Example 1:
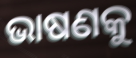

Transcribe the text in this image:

ଭାଷଣକୁ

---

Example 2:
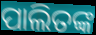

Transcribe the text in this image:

ପାଲିତଙ୍କ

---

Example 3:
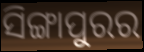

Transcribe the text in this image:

ସିଙ୍ଗାପୁରର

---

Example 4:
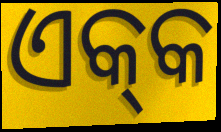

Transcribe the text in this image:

ଏକ୍‍କ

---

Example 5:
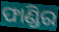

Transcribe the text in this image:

ଫାଣ୍ଡିର